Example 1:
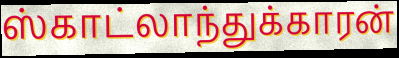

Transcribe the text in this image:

ஸ்காட்லாந்துக்காரன்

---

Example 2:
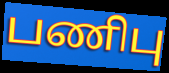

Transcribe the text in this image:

பணிபு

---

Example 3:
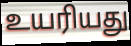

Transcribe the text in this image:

உயரியது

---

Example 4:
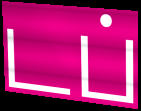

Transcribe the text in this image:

டப்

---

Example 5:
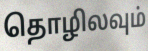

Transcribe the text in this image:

தொழிலவும்